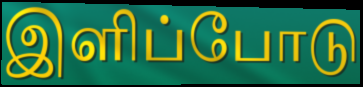
இளிப்போடு